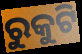
ରୁକୁଟି